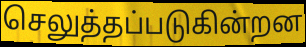
செலுத்தப்படுகின்றன